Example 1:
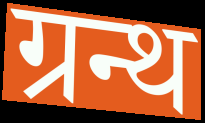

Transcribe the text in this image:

ग्रन्थ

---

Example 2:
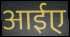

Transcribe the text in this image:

आईए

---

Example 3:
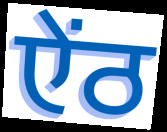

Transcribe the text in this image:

ऐंठ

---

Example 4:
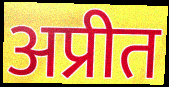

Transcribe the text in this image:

अप्रीत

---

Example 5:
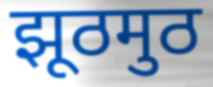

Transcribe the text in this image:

झूठमुठ